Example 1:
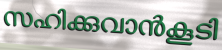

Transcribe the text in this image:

സഹിക്കുവാൻകൂടി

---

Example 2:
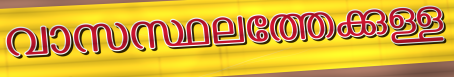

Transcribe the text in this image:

വാസസ്ഥലത്തേക്കുള്ള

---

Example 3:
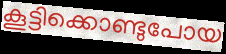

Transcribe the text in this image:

കൂട്ടിക്കൊണ്ടുപോയ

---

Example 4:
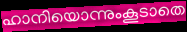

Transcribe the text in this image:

ഹാനിയൊന്നുംകൂടാതെ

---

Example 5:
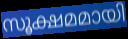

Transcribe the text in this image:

സൂക്ഷമമായി